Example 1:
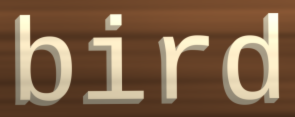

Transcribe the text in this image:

bird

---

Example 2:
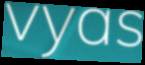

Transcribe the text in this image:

vyas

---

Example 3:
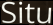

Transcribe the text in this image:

Situ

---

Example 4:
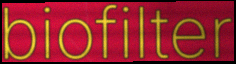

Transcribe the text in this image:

biofilter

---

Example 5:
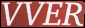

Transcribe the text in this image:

VVER